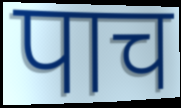
पाच